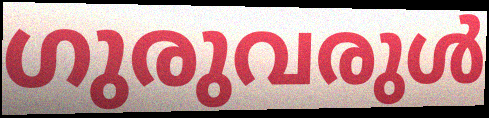
ഗുരുവരുൾ